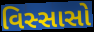
વિસ્સાસો